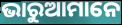
ଭାରୁଆମାନେ